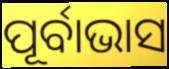
ପୂର୍ବାଭାସ